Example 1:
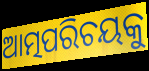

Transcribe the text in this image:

ଆତ୍ମପରିଚୟକୁ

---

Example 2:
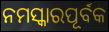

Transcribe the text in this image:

ନମସ୍କାରପୂର୍ବକ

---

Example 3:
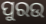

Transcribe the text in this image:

ପୁରଉ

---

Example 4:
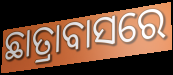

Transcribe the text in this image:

ଛାତ୍ରାବାସରେ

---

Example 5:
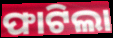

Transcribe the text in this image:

ଫାଟିଲା